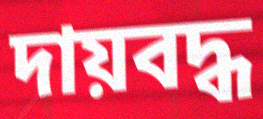
দায়বদ্ধ